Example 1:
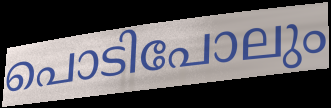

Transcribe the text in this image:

പൊടിപോലും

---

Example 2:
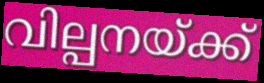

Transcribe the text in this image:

വില്പനയ്ക്ക്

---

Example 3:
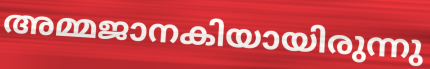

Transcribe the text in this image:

അമ്മജാനകിയായിരുന്നു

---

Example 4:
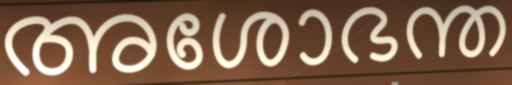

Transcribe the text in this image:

അശോഭന്ത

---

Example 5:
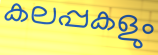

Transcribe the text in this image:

കലപ്പകളും